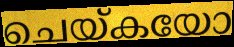
ചെയ്കയോ